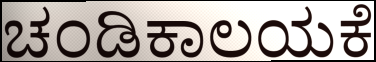
ಚಂಡಿಕಾಲಯಕೆ